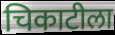
चिकाटीला